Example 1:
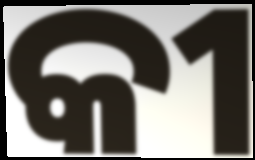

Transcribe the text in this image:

କୀ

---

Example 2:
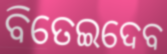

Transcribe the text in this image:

ବିତେଇଦେବ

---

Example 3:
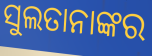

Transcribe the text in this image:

ସୁଲତାନାଙ୍କର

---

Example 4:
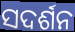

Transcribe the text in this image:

ସଦର୍ଶନ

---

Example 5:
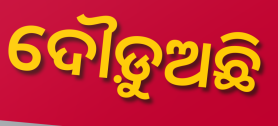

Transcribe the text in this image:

ଦୌଡ଼ୁଅଛି